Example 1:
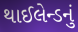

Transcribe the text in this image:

થાઈલેન્ડનું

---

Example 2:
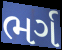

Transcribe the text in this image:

ભર્ગ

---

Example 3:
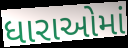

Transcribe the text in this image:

ધારાઓમાં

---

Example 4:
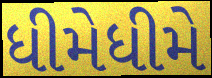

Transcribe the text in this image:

ધીમેધીમે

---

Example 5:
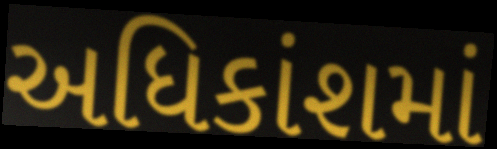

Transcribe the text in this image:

અધિકાંશમાં